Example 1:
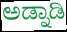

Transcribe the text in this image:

ಅಡ್ನಾಡಿ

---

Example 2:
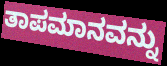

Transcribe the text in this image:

ತಾಪಮಾನವನ್ನು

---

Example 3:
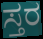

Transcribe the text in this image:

ಸ್ತರ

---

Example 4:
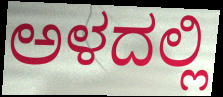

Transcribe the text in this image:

ಅಳದಲ್ಲಿ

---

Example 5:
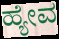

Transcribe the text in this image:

ಹ್ಯೇವ